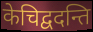
केचिद्वदन्ति